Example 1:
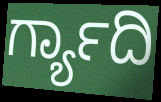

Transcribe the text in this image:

ರ್ಗ್ಯಾದಿ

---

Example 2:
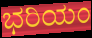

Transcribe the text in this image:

ಭರಿಯಂ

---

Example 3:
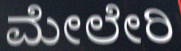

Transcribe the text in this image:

ಮೇಲೇರಿ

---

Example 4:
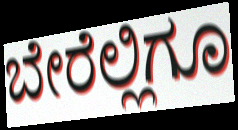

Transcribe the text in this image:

ಬೇರೆಲ್ಲಿಗೂ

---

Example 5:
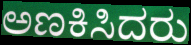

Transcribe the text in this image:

ಅಣಕಿಸಿದರು